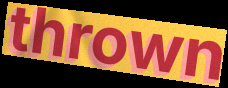
thrown